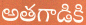
అతగాడికి